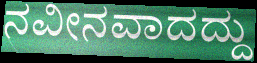
ನವೀನವಾದದ್ದು